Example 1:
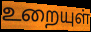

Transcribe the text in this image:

உறையுள்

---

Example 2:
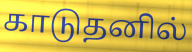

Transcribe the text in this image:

காடுதனில்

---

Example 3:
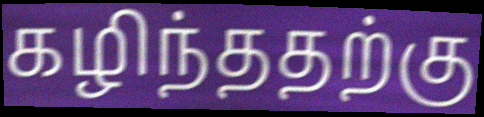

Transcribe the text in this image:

கழிந்ததற்கு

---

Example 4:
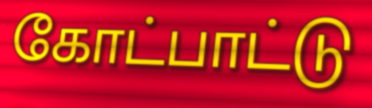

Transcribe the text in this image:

கோட்பாட்டு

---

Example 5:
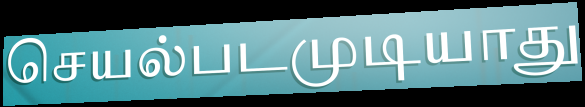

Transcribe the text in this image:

செயல்படமுடியாது